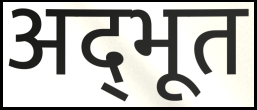
अद्‌भूत